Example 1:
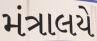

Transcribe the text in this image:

મંત્રાલયે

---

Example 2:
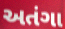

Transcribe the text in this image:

અતંગા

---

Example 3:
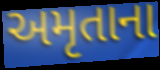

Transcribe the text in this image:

અમૃતાના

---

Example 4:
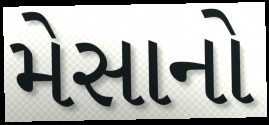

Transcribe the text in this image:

મેસાનો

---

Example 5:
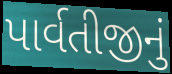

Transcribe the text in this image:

પાર્વતીજીનું